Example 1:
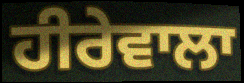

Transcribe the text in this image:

ਹੀਰੇਵਾਲਾ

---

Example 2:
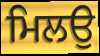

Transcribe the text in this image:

ਮਿਲਉ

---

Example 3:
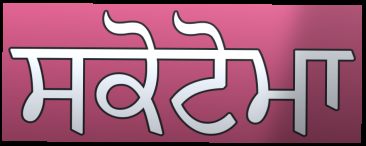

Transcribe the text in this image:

ਸਕੋਟੋਮਾ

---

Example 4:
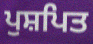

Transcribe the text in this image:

ਪੁਸ਼ਪਿਤ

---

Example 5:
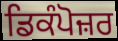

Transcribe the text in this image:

ਡਿਕੰਪੋਜ਼ਰ